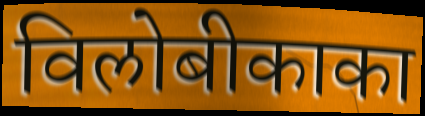
विलोबीकाका